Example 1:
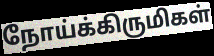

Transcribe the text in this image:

நோய்க்கிருமிகள்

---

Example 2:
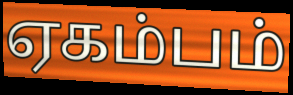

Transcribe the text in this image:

ஏகம்பம்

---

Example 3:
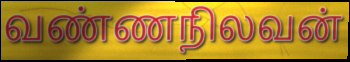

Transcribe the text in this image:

வண்ணநிலவன்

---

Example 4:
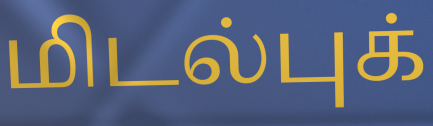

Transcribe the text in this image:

மிடல்புக்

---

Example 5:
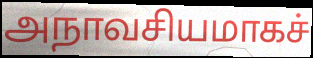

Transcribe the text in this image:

அநாவசியமாகச்